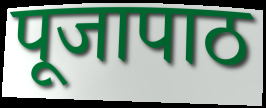
पूजापाठ